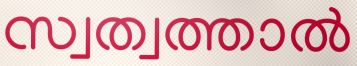
സ്വത്വത്താൽ